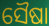
ସୈଷା